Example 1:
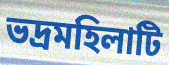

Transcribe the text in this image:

ভদ্রমহিলাটি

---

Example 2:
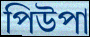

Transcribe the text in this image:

পিউপা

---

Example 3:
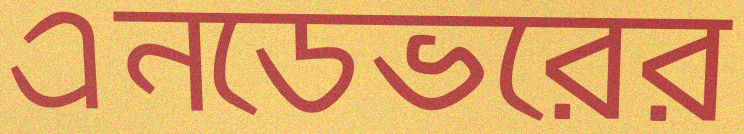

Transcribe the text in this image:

এনডেভরের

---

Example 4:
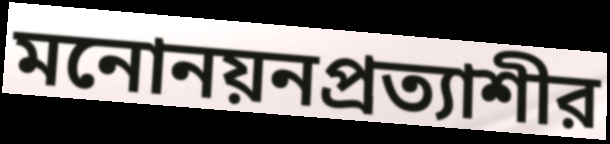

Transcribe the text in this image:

মনোনয়নপ্রত্যাশীর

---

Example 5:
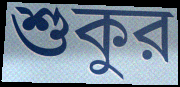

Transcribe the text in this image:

শুকুর